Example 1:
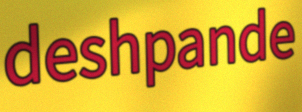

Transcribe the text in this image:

deshpande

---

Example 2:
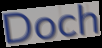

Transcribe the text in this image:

Doch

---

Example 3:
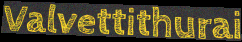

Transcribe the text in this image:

Valvettithurai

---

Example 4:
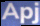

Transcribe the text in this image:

Apj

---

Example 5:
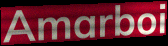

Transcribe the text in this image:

Amarboi